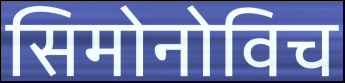
सिमोनोविच